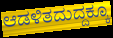
ಆಡಳಿತದುದ್ದಕ್ಕೂ